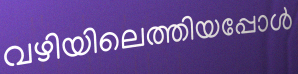
വഴിയിലെത്തിയപ്പോൾ